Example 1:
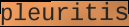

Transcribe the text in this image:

pleuritis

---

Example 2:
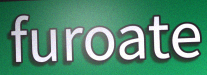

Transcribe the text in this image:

furoate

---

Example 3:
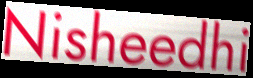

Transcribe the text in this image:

Nisheedhi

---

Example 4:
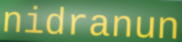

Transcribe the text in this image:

nidranun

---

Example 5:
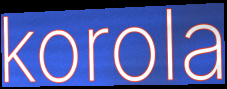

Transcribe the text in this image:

korola